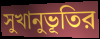
সুখানুভূতির